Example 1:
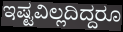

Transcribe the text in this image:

ಇಷ್ಟವಿಲ್ಲದಿದ್ದರೂ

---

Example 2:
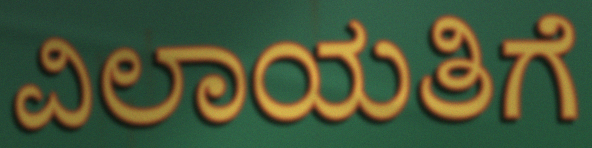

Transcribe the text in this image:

ವಿಲಾಯತಿಗೆ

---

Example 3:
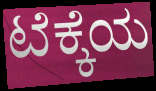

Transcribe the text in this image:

ಟೆಕ್ಕೆಯ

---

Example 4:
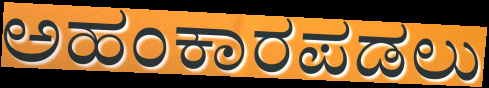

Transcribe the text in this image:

ಅಹಂಕಾರಪಡಲು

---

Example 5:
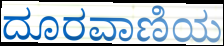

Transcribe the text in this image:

ದೂರವಾಣಿಯ